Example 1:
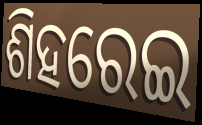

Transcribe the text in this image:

ଶିହରେଇ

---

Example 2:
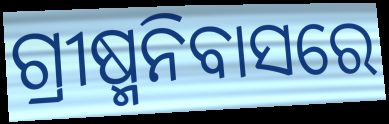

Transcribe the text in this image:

ଗ୍ରୀଷ୍ମନିବାସରେ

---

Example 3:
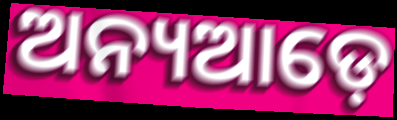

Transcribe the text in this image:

ଅନ୍ୟଆଡ଼େ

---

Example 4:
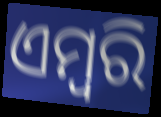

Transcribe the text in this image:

ଏମ୍ବରି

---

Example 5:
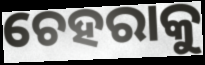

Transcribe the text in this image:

ଚେହରାକୁ